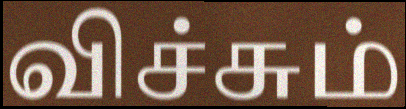
விச்சும்